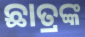
ଛାତ୍ରଙ୍କ